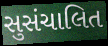
સુસંચાલિત